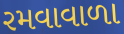
રમવાવાળા